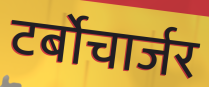
टर्बोचार्जर